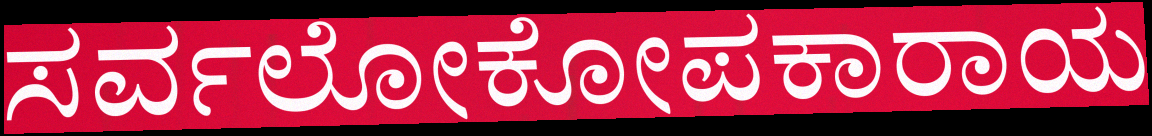
ಸರ್ವಲೋಕೋಪಕಾರಾಯ